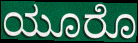
ಯೂರೊ